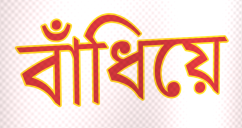
বাঁধিয়ে